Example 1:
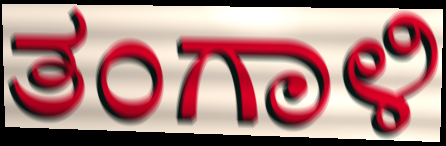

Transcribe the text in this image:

ತಂಗಾಳಿ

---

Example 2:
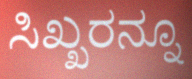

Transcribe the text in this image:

ಸಿಖ್ಖರನ್ನೂ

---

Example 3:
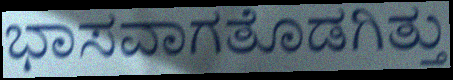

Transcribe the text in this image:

ಭಾಸವಾಗತೊಡಗಿತ್ತು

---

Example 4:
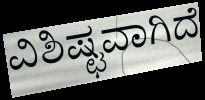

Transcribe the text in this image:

ವಿಶಿಷ್ಟವಾಗಿದೆ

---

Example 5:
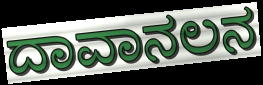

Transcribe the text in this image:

ದಾವಾನಲನ